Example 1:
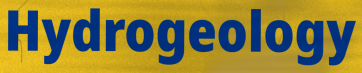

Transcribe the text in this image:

Hydrogeology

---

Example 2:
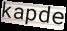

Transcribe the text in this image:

kapde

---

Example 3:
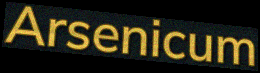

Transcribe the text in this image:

Arsenicum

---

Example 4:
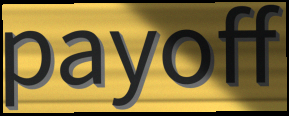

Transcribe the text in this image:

payoff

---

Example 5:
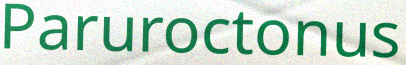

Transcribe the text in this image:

Paruroctonus